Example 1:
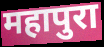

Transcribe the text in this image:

महापुरा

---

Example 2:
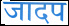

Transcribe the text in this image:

जादप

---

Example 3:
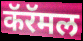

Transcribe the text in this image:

कॅरॅमल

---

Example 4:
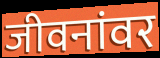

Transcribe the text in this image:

जीवनांवर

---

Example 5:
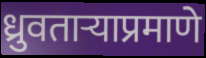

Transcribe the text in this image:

ध्रुवताऱ्याप्रमाणे